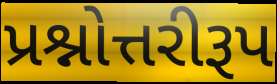
પ્રશ્નોત્તરીરૂપ